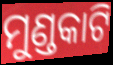
ମୁଣ୍ଡକାଟି